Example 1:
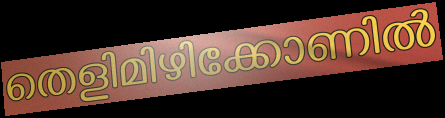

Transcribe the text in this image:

തെളിമിഴിക്കോണിൽ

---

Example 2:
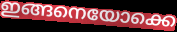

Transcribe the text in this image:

ഇങ്ങനെയോക്കെ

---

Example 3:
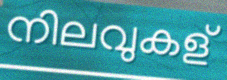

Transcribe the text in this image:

നിലവുകള്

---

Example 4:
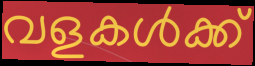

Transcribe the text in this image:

വളകൾക്ക്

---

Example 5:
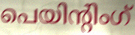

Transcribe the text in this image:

പെയിന്റിംഗ്